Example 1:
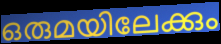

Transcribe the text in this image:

ഒരുമയിലേക്കും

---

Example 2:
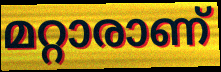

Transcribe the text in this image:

മറ്റാരാണ്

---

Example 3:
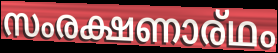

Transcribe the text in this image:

സംരക്ഷണാര്ഥം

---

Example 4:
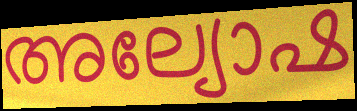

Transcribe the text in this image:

അല്യോഷ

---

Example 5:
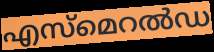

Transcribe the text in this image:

എസ്മെറൽഡ